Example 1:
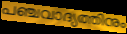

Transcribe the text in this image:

പഞ്ചവാദ്യത്തിനും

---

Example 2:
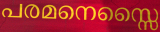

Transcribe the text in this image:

പരമനെസ്സൈ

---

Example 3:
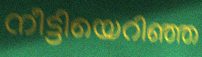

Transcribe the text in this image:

നീട്ടിയെറിഞ്ഞ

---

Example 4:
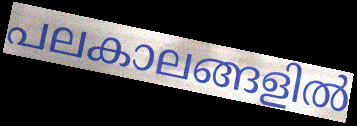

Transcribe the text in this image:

പലകാലങ്ങളിൽ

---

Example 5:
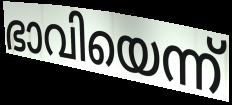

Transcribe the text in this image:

ഭാവിയെന്ന്